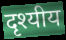
दृश्यीय